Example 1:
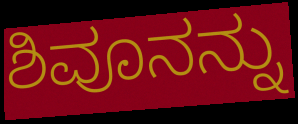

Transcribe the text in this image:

ಶಿವೂನನ್ನು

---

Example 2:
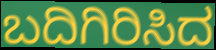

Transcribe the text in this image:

ಬದಿಗಿರಿಸಿದ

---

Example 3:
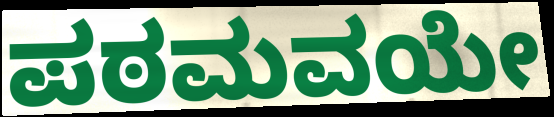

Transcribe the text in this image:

ಪಠಮವಯೇ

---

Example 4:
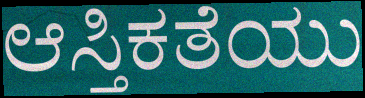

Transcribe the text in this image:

ಆಸ್ತಿಕತೆಯು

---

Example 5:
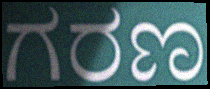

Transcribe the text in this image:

ಗರಣ